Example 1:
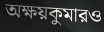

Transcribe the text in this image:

অক্ষয়কুমারও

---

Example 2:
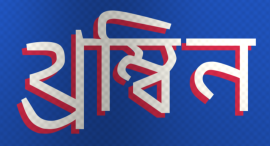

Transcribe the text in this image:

থ্রম্বিন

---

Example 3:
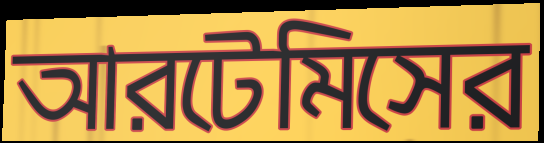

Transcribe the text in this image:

আরটেমিসের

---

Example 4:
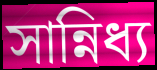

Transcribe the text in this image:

সান্নিধ্য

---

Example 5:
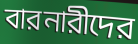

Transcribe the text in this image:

বারনারীদের